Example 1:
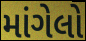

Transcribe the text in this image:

માંગેલો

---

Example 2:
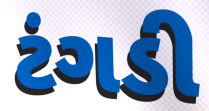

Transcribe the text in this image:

ટંગડી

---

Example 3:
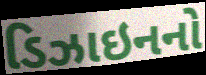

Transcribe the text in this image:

ડિઝાઇનનો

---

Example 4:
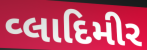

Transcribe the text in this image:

વ્લાદિમીર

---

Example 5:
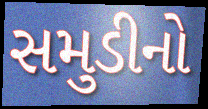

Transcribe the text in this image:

સમુડીનો